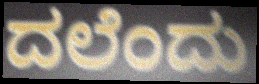
ದಲೆಂದು